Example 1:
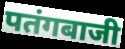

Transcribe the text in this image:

पतंगबाजी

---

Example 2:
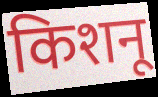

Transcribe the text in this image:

किशनू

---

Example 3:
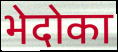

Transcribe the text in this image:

भेदोका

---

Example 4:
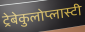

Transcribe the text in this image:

ट्रेबेकुलोप्लास्टी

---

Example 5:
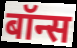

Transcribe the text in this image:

बॉन्स